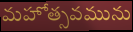
మహోత్సవమును